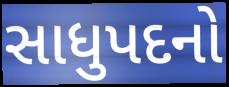
સાધુપદનો